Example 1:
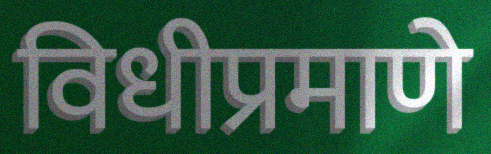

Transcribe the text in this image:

विधीप्रमाणे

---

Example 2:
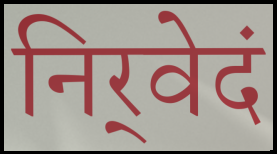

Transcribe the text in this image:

निर्वेदं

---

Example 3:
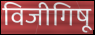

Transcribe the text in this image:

विजीगिषू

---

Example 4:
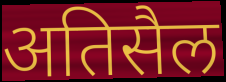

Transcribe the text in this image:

अतिसैल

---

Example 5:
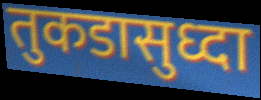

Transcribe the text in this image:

तुकडासुध्दा